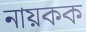
নায়কক